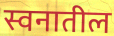
स्वनातील